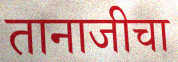
तानाजीचा